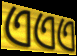
ଏଏଏ